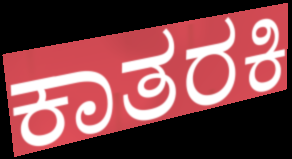
ಕಾತರಕಿ